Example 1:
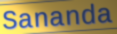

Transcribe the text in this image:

Sananda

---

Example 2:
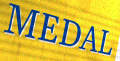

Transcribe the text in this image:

MEDAL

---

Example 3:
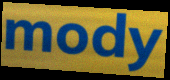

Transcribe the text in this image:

mody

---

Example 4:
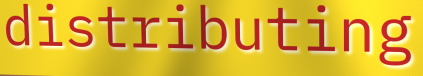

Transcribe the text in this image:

distributing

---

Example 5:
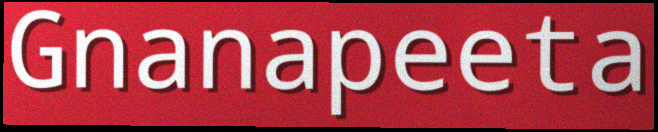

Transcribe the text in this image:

Gnanapeeta